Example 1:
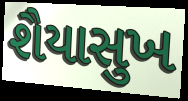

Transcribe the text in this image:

શૈયાસુખ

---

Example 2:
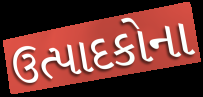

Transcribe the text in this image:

ઉત્પાદકોના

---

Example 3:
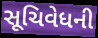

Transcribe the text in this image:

સૂચિવેધની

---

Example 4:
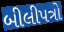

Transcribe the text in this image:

બીલીપત્રો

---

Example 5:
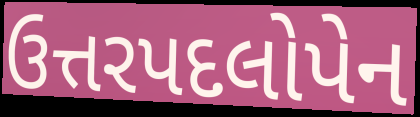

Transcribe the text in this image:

ઉત્તરપદલોપેન